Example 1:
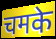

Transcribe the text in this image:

चमके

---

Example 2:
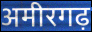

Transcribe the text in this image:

अमीरगढ़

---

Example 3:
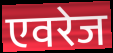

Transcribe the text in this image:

एवरेज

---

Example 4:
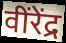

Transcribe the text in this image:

वींरेंद्र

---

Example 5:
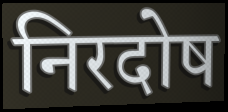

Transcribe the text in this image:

निरदोष